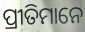
ପ୍ରୀତିମାନେ